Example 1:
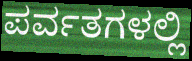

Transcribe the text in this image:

ಪರ್ವತಗಳಲ್ಲಿ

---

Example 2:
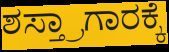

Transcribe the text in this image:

ಶಸ್ತ್ರಾಗಾರಕ್ಕೆ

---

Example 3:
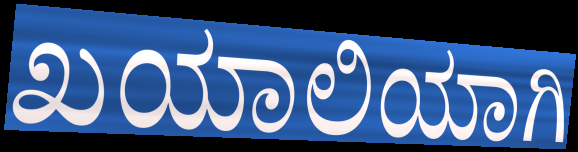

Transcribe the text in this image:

ಖಯಾಲಿಯಾಗಿ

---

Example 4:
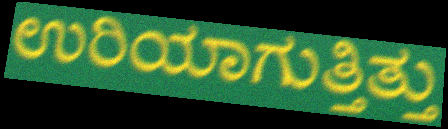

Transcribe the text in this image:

ಉರಿಯಾಗುತ್ತಿತ್ತು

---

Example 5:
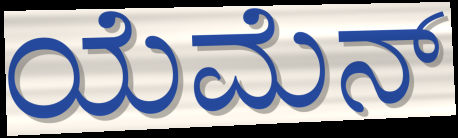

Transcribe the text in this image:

ಯೆಮೆನ್